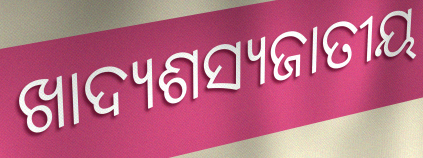
ଖାଦ୍ୟଶସ୍ୟଜାତୀୟ